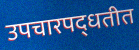
उपचारपद्धतीत